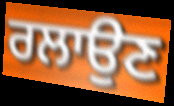
ਰਲਾਉਣ